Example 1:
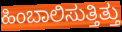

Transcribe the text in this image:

ಹಿಂಬಾಲಿಸುತ್ತಿತ್ತು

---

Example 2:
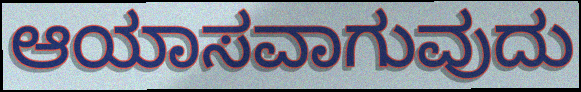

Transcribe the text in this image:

ಆಯಾಸವಾಗುವುದು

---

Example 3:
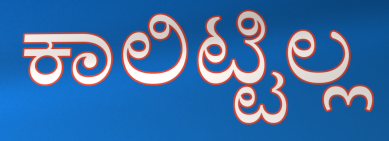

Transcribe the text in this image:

ಕಾಲಿಟ್ಟಿಲ್ಲ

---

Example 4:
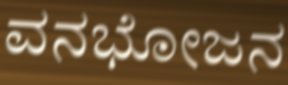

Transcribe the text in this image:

ವನಭೋಜನ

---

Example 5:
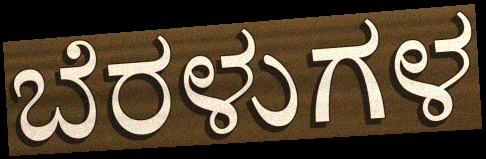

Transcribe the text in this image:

ಬೆರಳುಗಳ